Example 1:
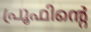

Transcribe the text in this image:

പ്രൂഫിന്റെ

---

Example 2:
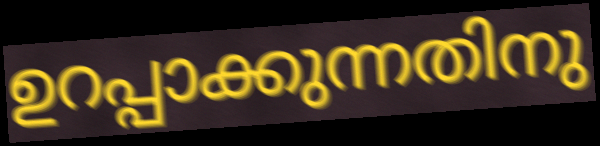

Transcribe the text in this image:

ഉറപ്പാക്കുന്നതിനു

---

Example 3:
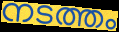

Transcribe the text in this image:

നടത്തം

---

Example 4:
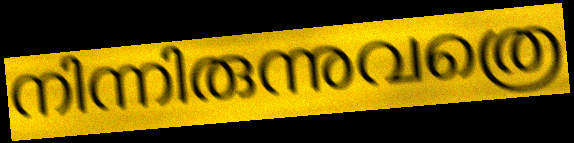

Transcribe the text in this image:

നിന്നിരുന്നുവത്രെ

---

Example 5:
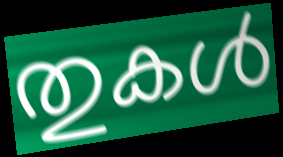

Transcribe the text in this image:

തുകൾ